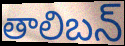
తాలిబన్